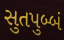
સુતપુબ્બં